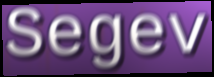
Segev